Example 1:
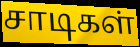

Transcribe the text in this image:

சாடிகள்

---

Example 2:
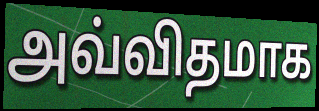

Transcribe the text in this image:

அவ்விதமாக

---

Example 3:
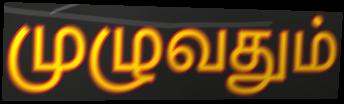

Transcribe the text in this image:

முழுவதும்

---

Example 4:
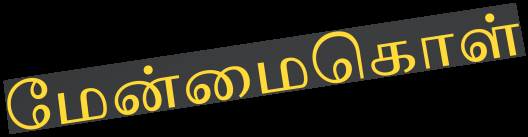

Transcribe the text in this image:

மேன்மைகொள்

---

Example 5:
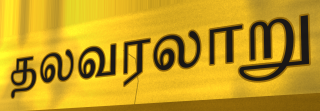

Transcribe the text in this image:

தலவரலாறு